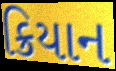
ક્રિયાન